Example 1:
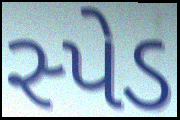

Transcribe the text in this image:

સ્પેડ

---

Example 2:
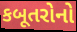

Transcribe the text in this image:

કબૂતરોનો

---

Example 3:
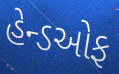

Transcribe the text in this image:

હેન્ડઓફ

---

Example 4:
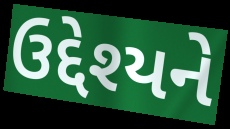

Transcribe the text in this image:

ઉદ્દેશ્યને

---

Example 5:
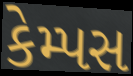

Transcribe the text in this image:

કેમ્પસ